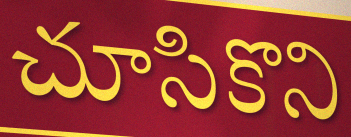
చూసికొని